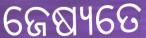
ଜେଷ୍ୟତେ